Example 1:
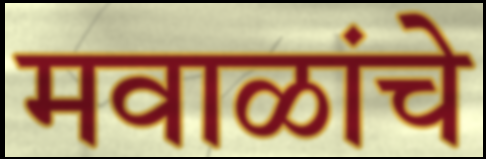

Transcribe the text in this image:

मवाळांचे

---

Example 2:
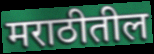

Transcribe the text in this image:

मराठीतील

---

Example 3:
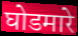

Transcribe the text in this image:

घोडमारे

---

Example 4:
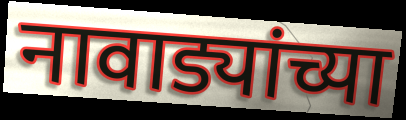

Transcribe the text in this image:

नावाड्यांच्या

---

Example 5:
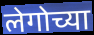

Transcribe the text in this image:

लेगोच्या